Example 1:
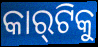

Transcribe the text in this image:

କାର୍‍ଟିକୁ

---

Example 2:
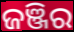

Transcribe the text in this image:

ଜଞ୍ଜିର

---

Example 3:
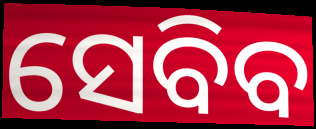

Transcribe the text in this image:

ସେବିବ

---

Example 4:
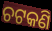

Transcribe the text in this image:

ଚଟକଣି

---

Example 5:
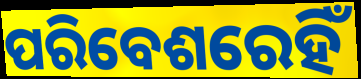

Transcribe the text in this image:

ପରିବେଶରେହିଁ